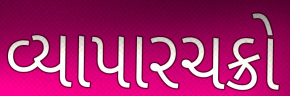
વ્યાપારચક્રો